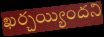
ఖర్చయ్యిందని